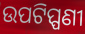
ଉପଟିପ୍ପଣୀ